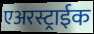
एअरस्ट्राईक